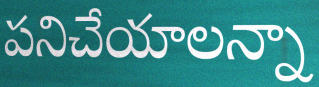
పనిచేయాలన్నా